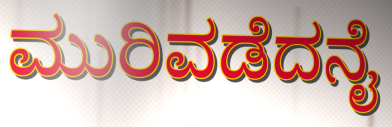
ಮುರಿವಡೆದನೈ